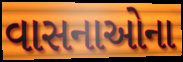
વાસનાઓના